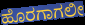
ಹೊರಗಾಗಲೀ